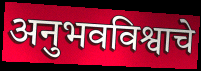
अनुभवविश्वाचे